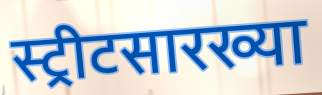
स्ट्रीटसारख्या